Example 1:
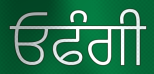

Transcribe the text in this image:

ਓਫੰਗੀ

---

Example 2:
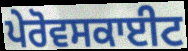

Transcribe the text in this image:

ਪੇਰੋਵਸਕਾਈਟ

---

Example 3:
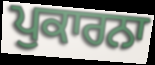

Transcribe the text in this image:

ਪੁਕਾਰਨਾ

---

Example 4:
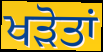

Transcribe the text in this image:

ਖੜੋਤਾਂ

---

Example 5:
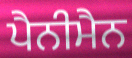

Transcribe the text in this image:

ਪੈਨੀਮੈਨ